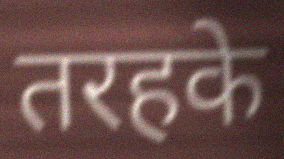
तरहके